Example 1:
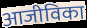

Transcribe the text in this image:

आजीविका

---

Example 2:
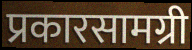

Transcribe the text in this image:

प्रकारसामग्री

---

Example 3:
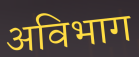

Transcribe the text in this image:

अविभाग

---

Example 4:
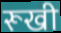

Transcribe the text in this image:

रूखी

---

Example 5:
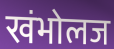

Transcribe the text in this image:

खंभोलज